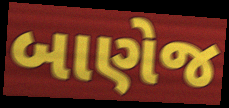
બાણેજ